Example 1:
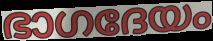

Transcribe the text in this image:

ഭാഗദേയം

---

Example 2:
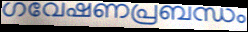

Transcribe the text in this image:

ഗവേഷണപ്രബന്ധം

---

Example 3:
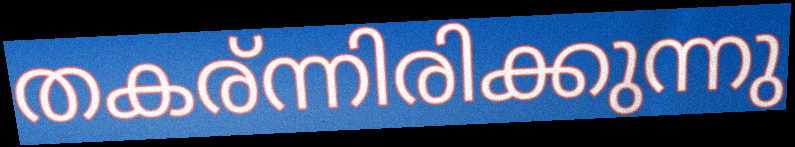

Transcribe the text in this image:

തകര്ന്നിരിക്കുന്നു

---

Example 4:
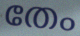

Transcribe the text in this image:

തേം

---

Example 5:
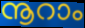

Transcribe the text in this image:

നൂറാം